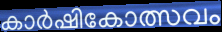
കാർഷികോത്സവം